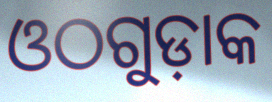
ଓଠଗୁଡ଼ାକ